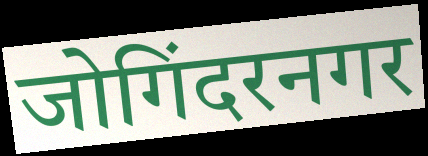
जोगिंदरनगर